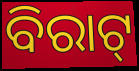
ବିରାଟ୍